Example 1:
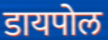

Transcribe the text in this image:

डायपोल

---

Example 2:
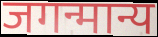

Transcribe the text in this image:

जगन्मान्य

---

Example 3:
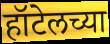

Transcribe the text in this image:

हॉटेलच्या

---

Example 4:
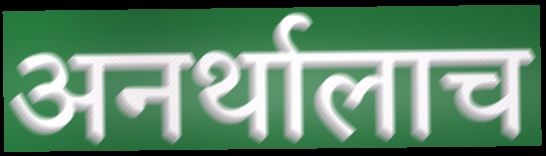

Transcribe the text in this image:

अनर्थालाच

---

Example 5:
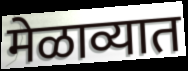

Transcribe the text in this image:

मेळाव्यात